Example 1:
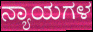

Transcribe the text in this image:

ನ್ಯಾಯಗಳ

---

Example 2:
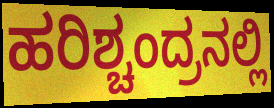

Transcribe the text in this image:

ಹರಿಶ್ಚಂದ್ರನಲ್ಲಿ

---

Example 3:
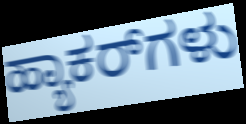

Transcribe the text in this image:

ಹ್ಯಾಕರ್‌ಗಳು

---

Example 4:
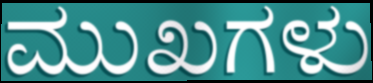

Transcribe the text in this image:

ಮುಖಗಳು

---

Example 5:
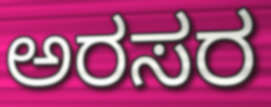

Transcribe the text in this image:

ಅರಸರ